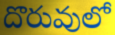
దొరువులో